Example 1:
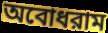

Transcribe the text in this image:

অবোধরাম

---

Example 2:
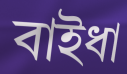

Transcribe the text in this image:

বাইধা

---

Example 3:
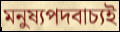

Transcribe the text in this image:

মনুষ্যপদবাচ্যই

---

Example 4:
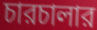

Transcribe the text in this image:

চারচালার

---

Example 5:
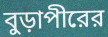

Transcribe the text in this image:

বুড়াপীরের